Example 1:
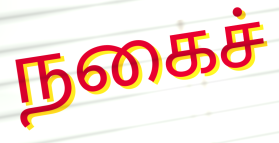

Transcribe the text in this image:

நகைச்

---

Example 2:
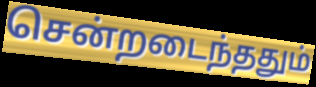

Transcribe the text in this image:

சென்றடைந்ததும்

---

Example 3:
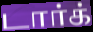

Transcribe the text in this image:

டார்க்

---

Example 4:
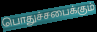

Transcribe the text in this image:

பொதுச்சபைக்கும்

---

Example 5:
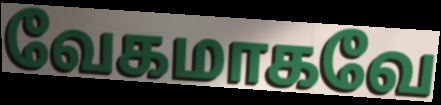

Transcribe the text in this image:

வேகமாகவே